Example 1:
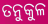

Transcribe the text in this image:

ତନୁକୁଳ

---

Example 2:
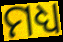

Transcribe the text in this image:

ମଧ୍ୟ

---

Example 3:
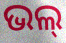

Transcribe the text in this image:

ଭଲ୍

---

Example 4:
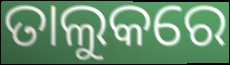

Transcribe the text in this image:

ତାଲୁକରେ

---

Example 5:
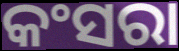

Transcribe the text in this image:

କଂସରା